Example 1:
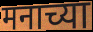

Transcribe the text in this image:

मनाच्या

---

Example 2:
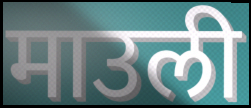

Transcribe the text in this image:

माउली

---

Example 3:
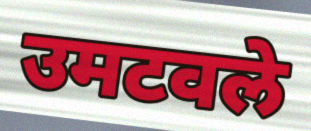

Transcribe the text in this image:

उमटवले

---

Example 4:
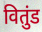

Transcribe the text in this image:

वितुंड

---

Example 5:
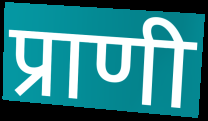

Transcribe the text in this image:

प्राणी